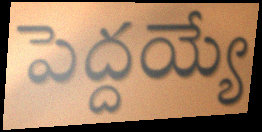
పెద్దయ్యే